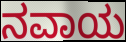
ನವಾಯ